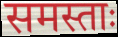
समस्ताः